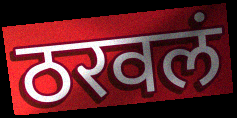
ठरवलं